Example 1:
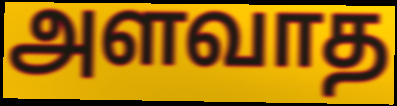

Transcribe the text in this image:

அளவாத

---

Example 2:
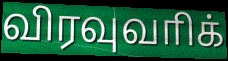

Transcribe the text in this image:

விரவுவரிக்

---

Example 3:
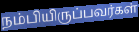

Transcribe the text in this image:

நம்பியிருப்பவர்கள்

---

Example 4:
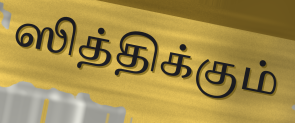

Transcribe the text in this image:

ஸித்திக்கும்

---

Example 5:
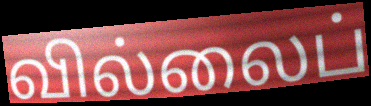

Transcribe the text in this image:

வில்லைப்